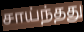
சாய்ந்தது